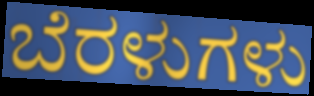
ಬೆರಳುಗಳು